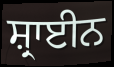
ਸ਼੍ਰਾਈਨ